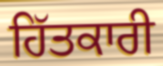
ਹਿੱਤਕਾਰੀ